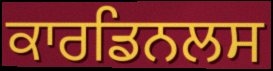
ਕਾਰਡਿਨਲਸ